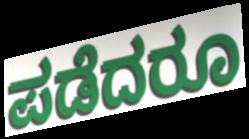
ಪಡೆದರೂ